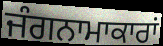
ਜੰਗਨਾਮਾਕਾਰਾਂ